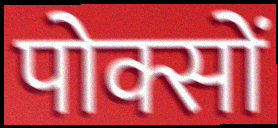
पोक्सों